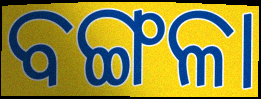
ବଙ୍ଗଳା